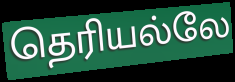
தெரியல்லே